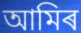
আমিৰ